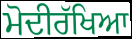
ਮੋਦੀਰੱਖਿਆ